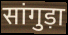
सांगुड़ा